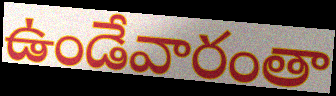
ఉండేవారంతా